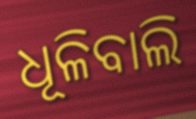
ଧୂଳିବାଲି